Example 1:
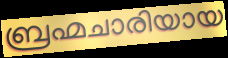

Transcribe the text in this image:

ബ്രഹ്മചാരിയായ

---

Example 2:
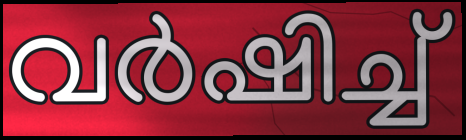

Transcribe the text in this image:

വർഷിച്ച്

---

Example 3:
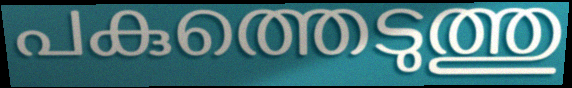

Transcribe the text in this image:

പകുത്തെടുത്തു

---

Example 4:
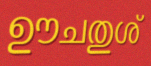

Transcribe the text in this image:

ഊചതുശ്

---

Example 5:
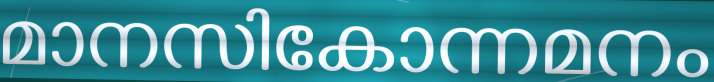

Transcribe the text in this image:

മാനസികോന്നമനം